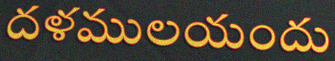
దళములయందు